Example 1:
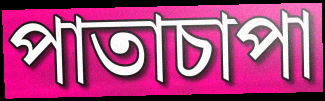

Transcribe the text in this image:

পাতাচাপা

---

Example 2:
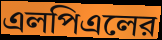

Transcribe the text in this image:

এলপিএলের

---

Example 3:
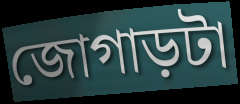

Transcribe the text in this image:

জোগাড়টা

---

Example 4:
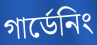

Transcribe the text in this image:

গার্ডেনিং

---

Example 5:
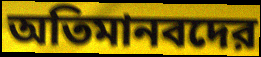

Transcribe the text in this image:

অতিমানবদের